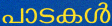
പാടകൾ